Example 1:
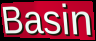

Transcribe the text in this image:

Basin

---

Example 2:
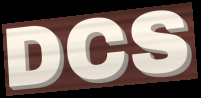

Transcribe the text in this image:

DCS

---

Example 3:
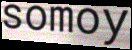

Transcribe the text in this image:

somoy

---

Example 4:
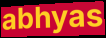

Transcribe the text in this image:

abhyas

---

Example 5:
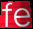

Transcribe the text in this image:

fe